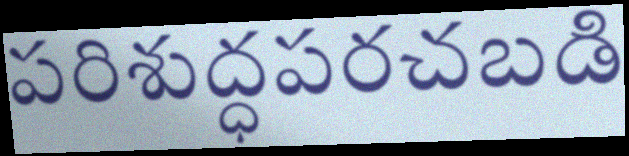
పరిశుద్ధపరచబడి